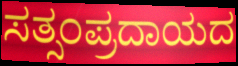
ಸತ್ಸಂಪ್ರದಾಯದ